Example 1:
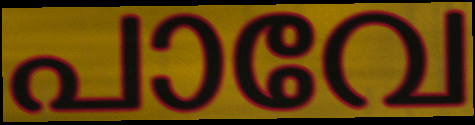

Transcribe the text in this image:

പാവേ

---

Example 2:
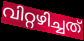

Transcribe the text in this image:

വിറ്റഴിച്ചത്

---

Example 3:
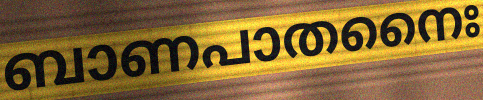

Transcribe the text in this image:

ബാണപാതനൈഃ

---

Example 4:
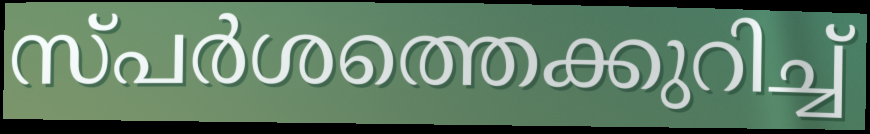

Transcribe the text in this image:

സ്പർശത്തെക്കുറിച്ച്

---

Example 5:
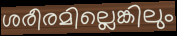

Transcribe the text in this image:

ശരീരമില്ലെങ്കിലും